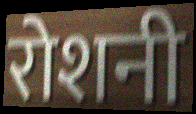
रोशनी